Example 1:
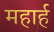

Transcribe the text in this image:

महार्ह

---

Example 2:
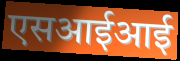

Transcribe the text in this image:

एसआईआई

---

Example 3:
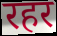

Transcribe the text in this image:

रहर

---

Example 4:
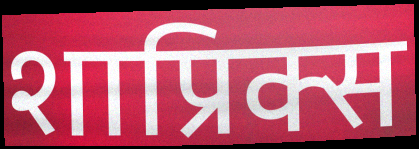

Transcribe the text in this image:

शाप्रिक्स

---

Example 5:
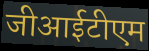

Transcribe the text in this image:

जीआईटीएम